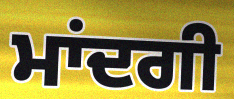
ਮਾਂਦਗੀ